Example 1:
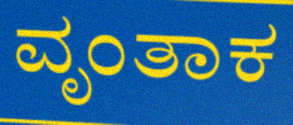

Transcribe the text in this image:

ವೃಂತಾಕ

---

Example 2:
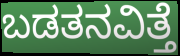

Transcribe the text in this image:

ಬಡತನವಿತ್ತೆ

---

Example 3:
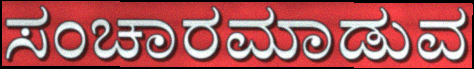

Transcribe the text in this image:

ಸಂಚಾರಮಾಡುವ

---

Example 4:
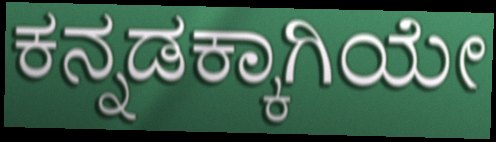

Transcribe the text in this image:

ಕನ್ನಡಕ್ಕಾಗಿಯೇ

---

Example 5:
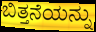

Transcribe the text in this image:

ಬಿತ್ತನೆಯನ್ನು